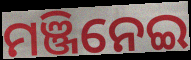
ମଞ୍ଜିନେଇ